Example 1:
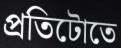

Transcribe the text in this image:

প্ৰতিটোতে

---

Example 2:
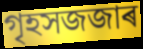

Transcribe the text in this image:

গৃহসজজাৰ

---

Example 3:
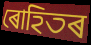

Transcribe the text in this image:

ৰোহিতৰ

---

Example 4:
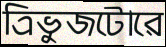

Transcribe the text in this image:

ত্ৰিভুজটোৱে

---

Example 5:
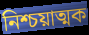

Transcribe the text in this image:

নিশ্চয়াত্মক